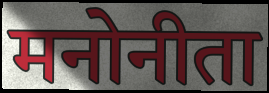
मनोनीता